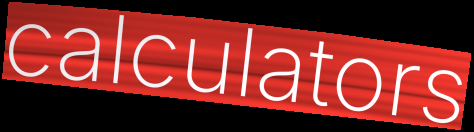
calculators